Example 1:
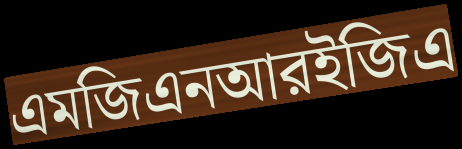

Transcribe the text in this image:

এমজিএনআরইজিএ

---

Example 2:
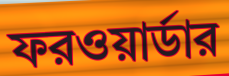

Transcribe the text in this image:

ফরওয়ার্ডার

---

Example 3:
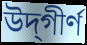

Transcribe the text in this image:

উদ্‌গীর্ণ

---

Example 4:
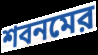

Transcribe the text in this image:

শবনমের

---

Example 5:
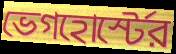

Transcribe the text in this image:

ভেগহোর্স্টের